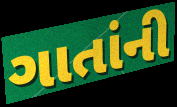
ગાતાંની